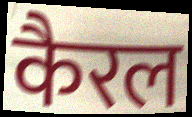
कैरल